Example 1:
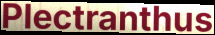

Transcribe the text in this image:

Plectranthus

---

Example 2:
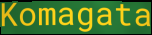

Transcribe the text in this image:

Komagata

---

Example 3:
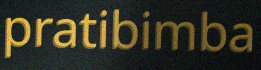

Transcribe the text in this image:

pratibimba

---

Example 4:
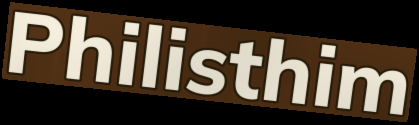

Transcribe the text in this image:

Philisthim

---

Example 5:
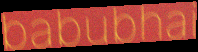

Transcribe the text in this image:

babubhai